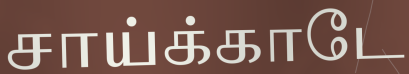
சாய்க்காடே